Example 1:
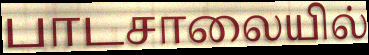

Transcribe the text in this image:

பாடசாலையில்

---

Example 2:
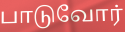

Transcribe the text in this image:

பாடுவோர்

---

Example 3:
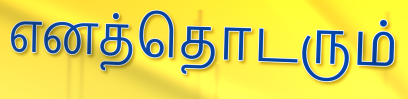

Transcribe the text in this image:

எனத்தொடரும்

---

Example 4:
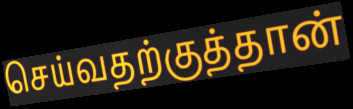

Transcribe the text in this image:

செய்வதற்குத்தான்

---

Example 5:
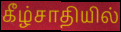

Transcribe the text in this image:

கீழ்சாதியில்